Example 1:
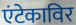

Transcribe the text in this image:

एंटेकाविर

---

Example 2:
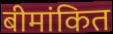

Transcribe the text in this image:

बीमांकित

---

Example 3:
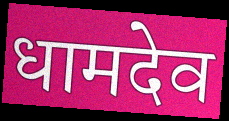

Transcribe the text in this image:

धामदेव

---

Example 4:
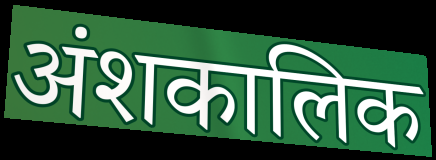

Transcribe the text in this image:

अंशकालिक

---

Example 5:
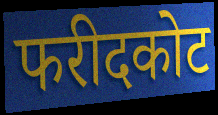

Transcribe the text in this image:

फरीदकोट